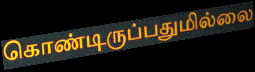
கொண்டிருப்பதுமில்லை